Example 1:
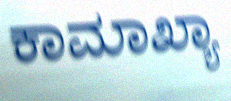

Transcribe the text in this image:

ಕಾಮಾಖ್ಯಾ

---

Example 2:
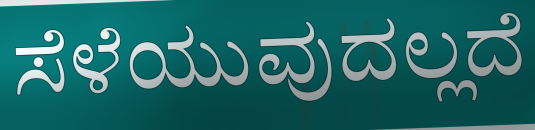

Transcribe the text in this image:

ಸೆಳೆಯುವುದಲ್ಲದೆ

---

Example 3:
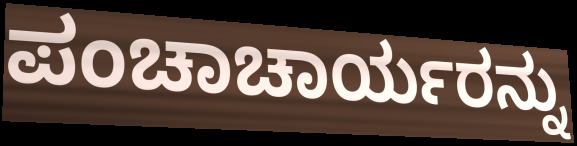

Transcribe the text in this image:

ಪಂಚಾಚಾರ್ಯರನ್ನು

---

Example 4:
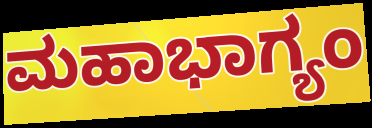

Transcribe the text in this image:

ಮಹಾಭಾಗ್ಯಂ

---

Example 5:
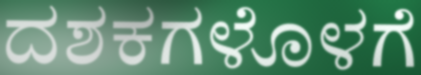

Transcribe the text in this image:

ದಶಕಗಳೊಳಗೆ